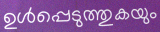
ഉൾപ്പെടുത്തുകയും